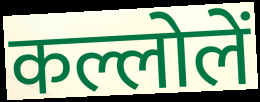
कल्लोलें